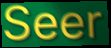
Seer